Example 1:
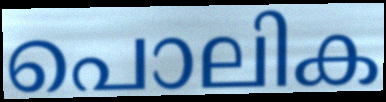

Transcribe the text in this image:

പൊലിക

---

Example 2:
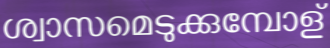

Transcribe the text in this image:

ശ്വാസമെടുക്കുമ്പോള്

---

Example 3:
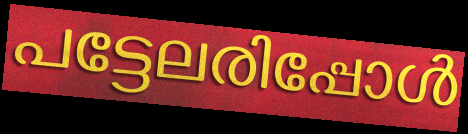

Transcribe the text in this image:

പട്ടേലരിപ്പോൾ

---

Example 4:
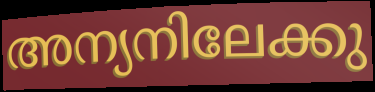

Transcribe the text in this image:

അന്യനിലേക്കു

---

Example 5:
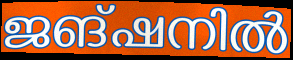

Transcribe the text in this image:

ജങ്ഷനിൽ